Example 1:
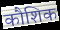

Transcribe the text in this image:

कौशिक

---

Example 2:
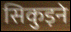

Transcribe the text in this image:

सिकुड़ने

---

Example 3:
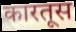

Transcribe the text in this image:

कारतूस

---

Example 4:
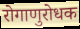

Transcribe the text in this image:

रोगाणुरोधक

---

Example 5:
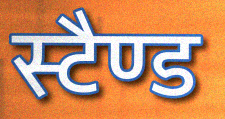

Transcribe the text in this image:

स्टैण्ड